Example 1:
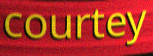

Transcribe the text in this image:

courtey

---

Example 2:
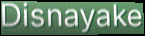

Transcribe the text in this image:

Disnayake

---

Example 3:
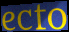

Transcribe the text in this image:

ecto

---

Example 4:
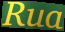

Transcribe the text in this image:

Rua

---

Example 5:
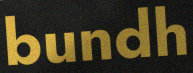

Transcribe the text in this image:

bundh